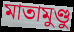
মাতামুণ্ডু